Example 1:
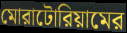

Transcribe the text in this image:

মোরাটোরিয়ামের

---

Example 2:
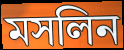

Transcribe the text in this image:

মসলিন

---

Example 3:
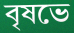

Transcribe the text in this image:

বৃষভে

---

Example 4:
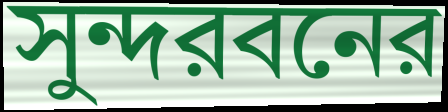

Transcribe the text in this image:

সুন্দরবনের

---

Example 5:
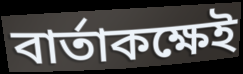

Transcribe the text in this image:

বার্তাকক্ষেই